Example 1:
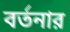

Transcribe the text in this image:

বর্তনার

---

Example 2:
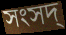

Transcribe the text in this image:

সংসদ্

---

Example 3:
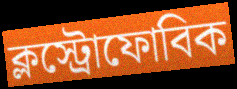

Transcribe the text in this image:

ক্লস্ট্রোফোবিক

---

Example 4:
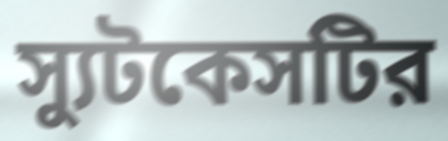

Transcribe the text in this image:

স্যুটকেসটির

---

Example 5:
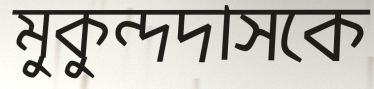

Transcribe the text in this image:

মুকুন্দদাসকে